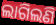
ଲାଗିଲଣି